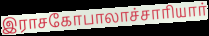
இராசகோபாலாச்சாரியார்